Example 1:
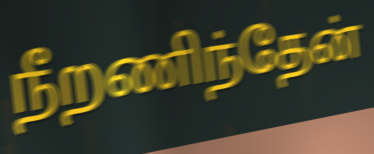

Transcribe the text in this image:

நீறணிந்தேன்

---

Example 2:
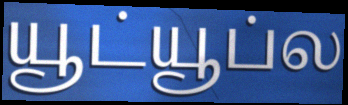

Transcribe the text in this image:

யூட்யூப்ல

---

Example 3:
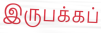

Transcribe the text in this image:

இருபக்கப்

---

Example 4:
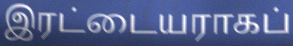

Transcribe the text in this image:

இரட்டையராகப்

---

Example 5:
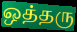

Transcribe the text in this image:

ஒத்தரு